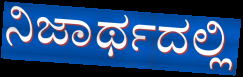
ನಿಜಾರ್ಥದಲ್ಲಿ